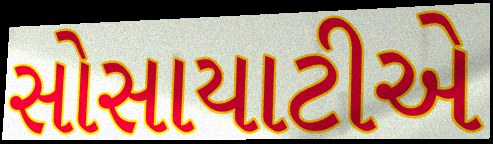
સોસાયાટીએ